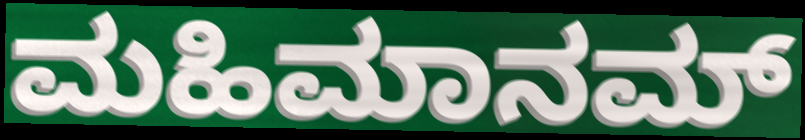
ಮಹಿಮಾನಮ್